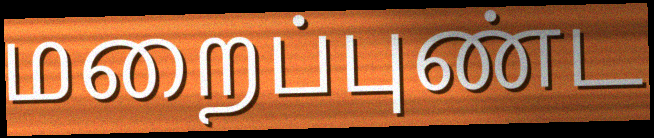
மறைப்புண்ட